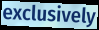
exclusively